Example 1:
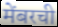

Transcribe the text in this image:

मेंबरची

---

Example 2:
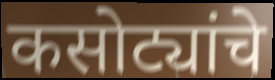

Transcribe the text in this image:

कसोट्यांचे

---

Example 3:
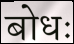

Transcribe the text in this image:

बोधः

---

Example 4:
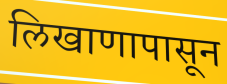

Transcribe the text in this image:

लिखाणापासून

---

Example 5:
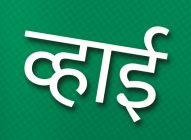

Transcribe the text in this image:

व्हाई